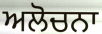
ਅਲੋਚਨਾ